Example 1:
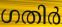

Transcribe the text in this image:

ഗതിർ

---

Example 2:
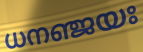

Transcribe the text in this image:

ധനഞ്ജയഃ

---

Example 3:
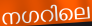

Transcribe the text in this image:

നഗറിലെ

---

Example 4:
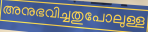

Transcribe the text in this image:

അനുഭവിച്ചതുപോലുള്ള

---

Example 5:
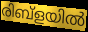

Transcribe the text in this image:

രിബ്ളയിൽ